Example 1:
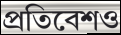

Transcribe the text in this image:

প্রতিবেশও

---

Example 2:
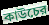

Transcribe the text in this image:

কাউচের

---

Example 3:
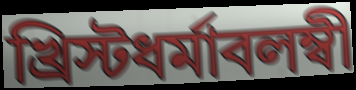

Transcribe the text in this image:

খ্রিস্টধর্মাবলম্বী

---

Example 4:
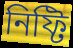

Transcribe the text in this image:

নিফ্টি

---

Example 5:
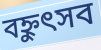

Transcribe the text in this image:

বহ্নুৎসব